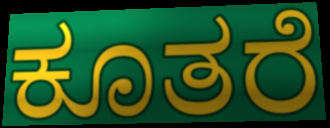
ಕೂತರೆ